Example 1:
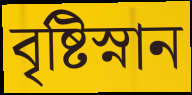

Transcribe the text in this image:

বৃষ্টিস্নান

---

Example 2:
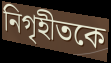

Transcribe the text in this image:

নিগৃহীতকে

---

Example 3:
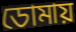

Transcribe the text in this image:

ডোমায়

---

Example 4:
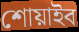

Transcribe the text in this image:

শোয়াইব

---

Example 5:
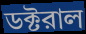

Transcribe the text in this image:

ডক্টরাল